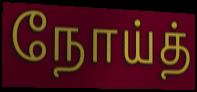
நோய்த்